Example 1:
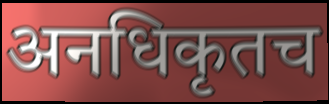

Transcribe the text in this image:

अनधिकृतच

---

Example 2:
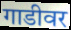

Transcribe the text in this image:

गाडीवर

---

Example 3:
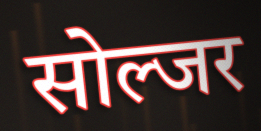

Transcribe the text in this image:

सोल्जर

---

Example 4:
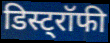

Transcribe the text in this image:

डिस्ट्रॉफी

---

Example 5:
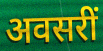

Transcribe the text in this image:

अवसरीं